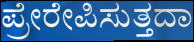
ಪ್ರೇರೇಪಿಸುತ್ತದಾ